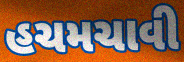
હચમચાવી